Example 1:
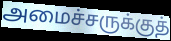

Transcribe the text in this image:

அமைச்சருக்குத்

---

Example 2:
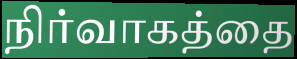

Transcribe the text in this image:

நிர்வாகத்தை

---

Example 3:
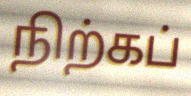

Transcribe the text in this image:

நிற்கப்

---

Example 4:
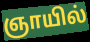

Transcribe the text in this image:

ஞாயில்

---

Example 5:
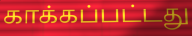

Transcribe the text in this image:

காக்கப்பட்டது